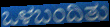
ಒಳಬಂದಿತು